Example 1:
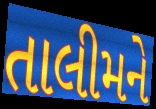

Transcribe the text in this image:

તાલીમને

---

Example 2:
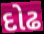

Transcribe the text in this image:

દોઢ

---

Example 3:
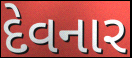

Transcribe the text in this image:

દેવનાર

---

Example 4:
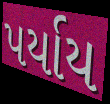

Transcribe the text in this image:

પર્યાય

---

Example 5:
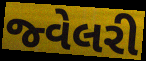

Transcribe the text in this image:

જ્વેલરી